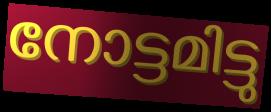
നോട്ടമിട്ടു